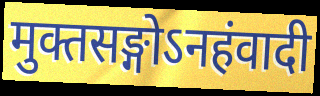
मुक्तसङ्गोऽनहंवादी